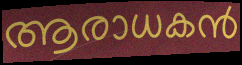
ആരാധകൻ